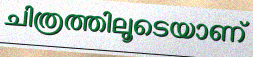
ചിത്രത്തിലൂടെയാണ്